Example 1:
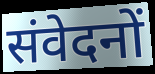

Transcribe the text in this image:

संवेदनों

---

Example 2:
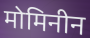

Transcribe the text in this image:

मोमिनीन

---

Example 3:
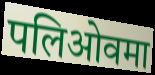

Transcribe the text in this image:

पलिओवमा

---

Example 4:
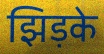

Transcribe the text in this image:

झिड़के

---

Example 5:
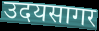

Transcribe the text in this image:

उदयसागर